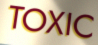
TOXIC